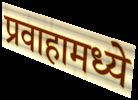
प्रवाहामध्ये